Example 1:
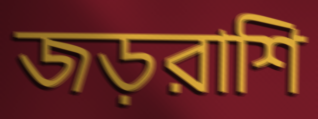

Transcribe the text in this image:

জড়রাশি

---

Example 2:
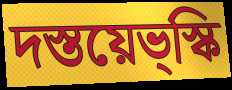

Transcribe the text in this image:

দস্তয়েভ্স্কি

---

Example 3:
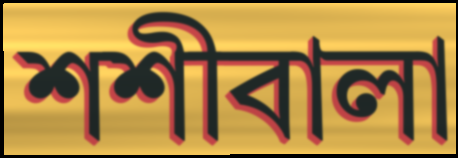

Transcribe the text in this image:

শশীবালা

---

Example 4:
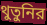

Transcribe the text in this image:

থুতুনির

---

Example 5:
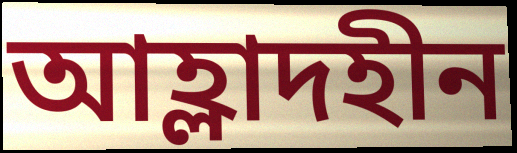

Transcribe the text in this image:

আহ্লাদহীন